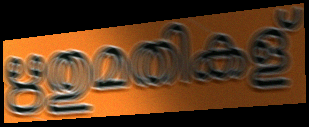
ഋതുമതികള്